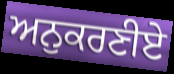
ਅਨੁਕਰਣੀਏ